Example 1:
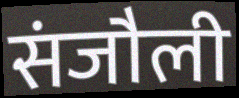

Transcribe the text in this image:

संजौली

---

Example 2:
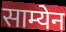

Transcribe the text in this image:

साम्येन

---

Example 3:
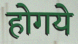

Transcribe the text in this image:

होगये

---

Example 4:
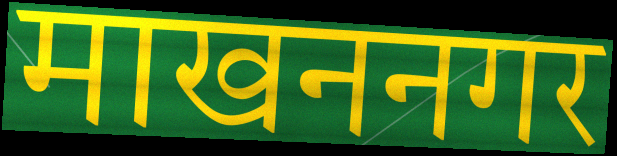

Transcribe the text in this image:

माखननगर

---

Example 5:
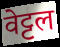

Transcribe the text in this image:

वेट्टल